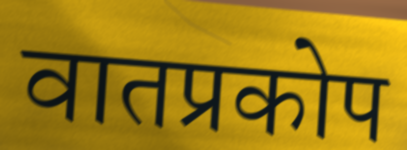
वातप्रकोप